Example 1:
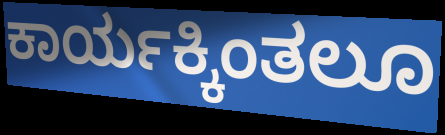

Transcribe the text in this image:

ಕಾರ್ಯಕ್ಕಿಂತಲೂ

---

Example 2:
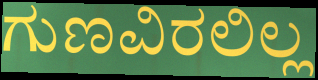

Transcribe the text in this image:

ಗುಣವಿರಲಿಲ್ಲ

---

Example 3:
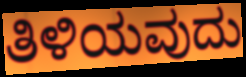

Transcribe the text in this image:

ತಿಳಿಯವುದು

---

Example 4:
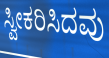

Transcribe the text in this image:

ಸ್ವೀಕರಿಸಿದವು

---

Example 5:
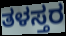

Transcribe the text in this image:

ತಳಸ್ತರ